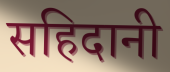
सहिदानी